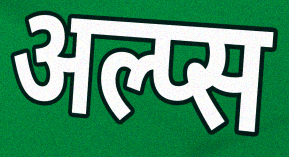
अल्प्स